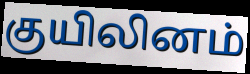
குயிலினம்